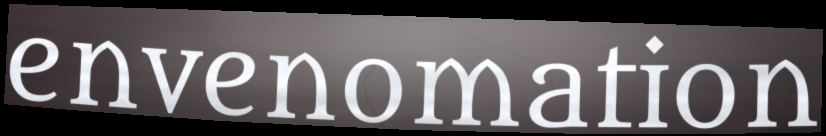
envenomation